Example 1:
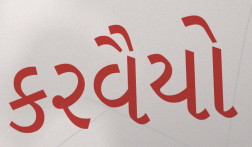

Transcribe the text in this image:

કરવૈયો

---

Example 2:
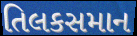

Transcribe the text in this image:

તિલકસમાન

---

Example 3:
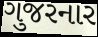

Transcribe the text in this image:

ગુજરનાર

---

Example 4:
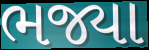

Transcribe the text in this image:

ભજ્યા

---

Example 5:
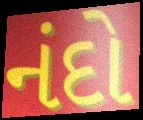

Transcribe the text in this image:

નંદો